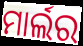
ମାର୍ଲର